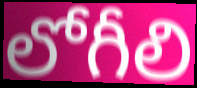
లోగీలి